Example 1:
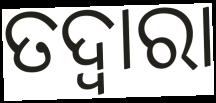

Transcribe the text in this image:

ତଦ୍ୱାରା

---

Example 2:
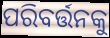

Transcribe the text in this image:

ପରିବର୍ତ୍ତନକୁ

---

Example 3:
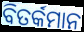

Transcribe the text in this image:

ବିତର୍କମାନ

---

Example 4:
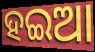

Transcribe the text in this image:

ହଇଆ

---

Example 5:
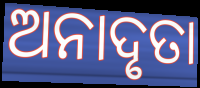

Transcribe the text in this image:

ଅନାଦୃତା